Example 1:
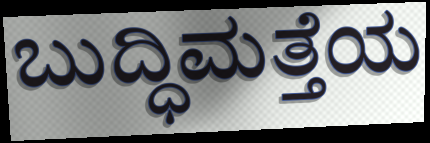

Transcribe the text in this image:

ಬುದ್ಧಿಮತ್ತೆಯ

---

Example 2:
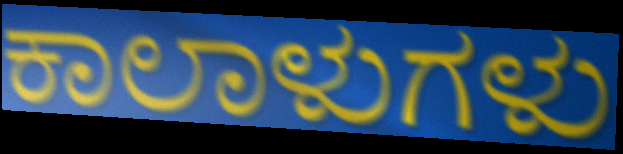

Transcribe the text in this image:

ಕಾಲಾಳುಗಳು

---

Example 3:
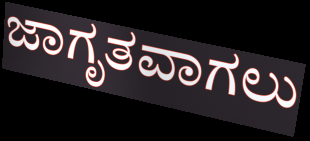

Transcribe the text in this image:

ಜಾಗೃತವಾಗಲು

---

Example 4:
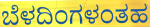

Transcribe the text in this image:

ಬೆಳದಿಂಗಳಂತಹ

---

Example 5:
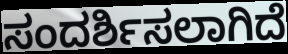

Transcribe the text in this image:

ಸಂದರ್ಶಿಸಲಾಗಿದೆ